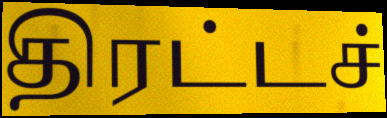
திரட்டச்